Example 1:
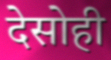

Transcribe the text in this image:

देसोही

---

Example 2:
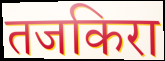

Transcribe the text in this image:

तजकिरा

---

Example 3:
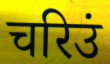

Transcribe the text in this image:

चरिउं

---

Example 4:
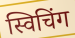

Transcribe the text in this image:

स्विचिंग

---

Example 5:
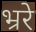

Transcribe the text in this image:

भ्ररे